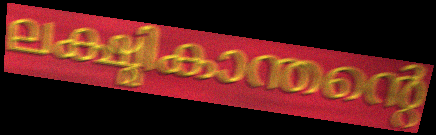
ലക്ഷ്മികാന്തന്റെ